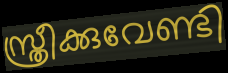
സ്ത്രീക്കുവേണ്ടി